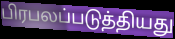
பிரபலப்படுத்தியது